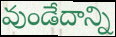
వుండేదాన్ని